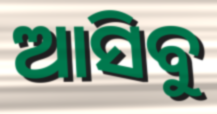
ଆସିବୁ